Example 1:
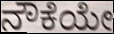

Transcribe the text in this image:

ನೌಕೆಯೇ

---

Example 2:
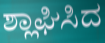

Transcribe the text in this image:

ಶ್ಲಾಘಿಸಿದ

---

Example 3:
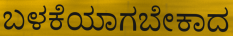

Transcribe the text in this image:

ಬಳಕೆಯಾಗಬೇಕಾದ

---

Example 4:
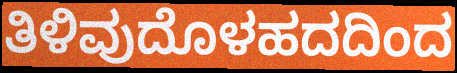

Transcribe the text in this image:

ತಿಳಿವುದೊಳಹದದಿಂದ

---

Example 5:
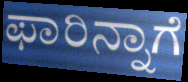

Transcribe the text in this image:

ಫಾರಿನ್ನಾಗೆ